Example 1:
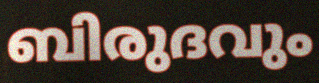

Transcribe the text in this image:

ബിരുദവും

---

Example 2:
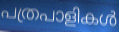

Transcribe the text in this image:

പത്രപാളികൾ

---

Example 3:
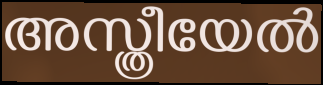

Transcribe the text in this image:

അസ്ത്രീയേൽ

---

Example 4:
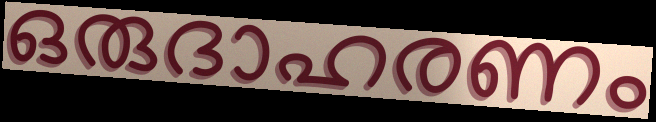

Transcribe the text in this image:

ഒരുദാഹരണം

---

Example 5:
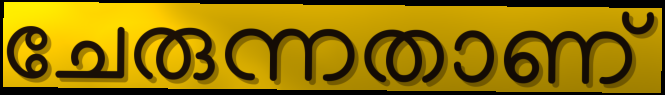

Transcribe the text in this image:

ചേരുന്നതാണ്